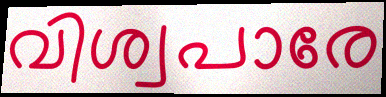
വിശ്വപാരേ